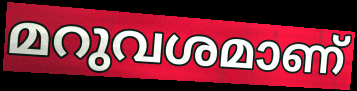
മറുവശമാണ്